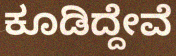
ಕೂಡಿದ್ದೇವೆ